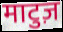
माटुज़